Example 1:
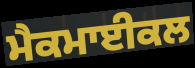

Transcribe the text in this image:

ਮੈਕਮਾਈਕਲ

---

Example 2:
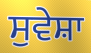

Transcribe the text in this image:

ਸੁਵੇਸ਼ਾ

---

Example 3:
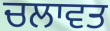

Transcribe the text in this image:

ਚਲਾਵਤ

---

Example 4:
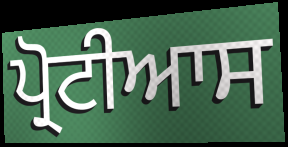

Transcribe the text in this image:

ਪ੍ਰੋਟੀਆਸ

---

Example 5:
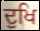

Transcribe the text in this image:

ਦੁਖਿ